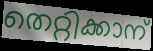
തെറ്റിക്കാന്